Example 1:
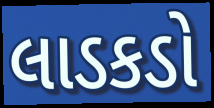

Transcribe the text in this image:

લાડકડો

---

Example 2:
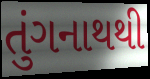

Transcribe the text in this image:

તુંગનાથથી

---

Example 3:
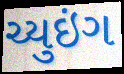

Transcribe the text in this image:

ચ્યુઇંગ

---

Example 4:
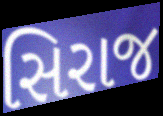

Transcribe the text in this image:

સિરાજ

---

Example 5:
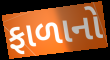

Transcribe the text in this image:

ફાળાનો